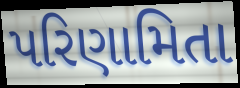
પરિણામિતા